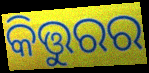
କିତ୍ତୁରର